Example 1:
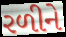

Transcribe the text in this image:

રળીને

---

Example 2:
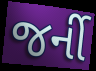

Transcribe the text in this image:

જર્ની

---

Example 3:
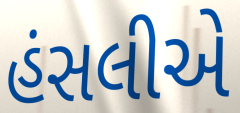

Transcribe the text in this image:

હંસલીએ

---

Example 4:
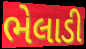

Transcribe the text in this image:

ભેલાડી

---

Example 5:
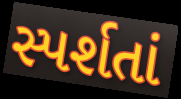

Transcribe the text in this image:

સ્પર્શતાં